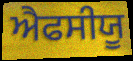
ਐਫਸੀਯੂ